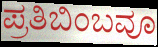
ಪ್ರತಿಬಿಂಬವೂ